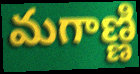
మగాణ్ణి